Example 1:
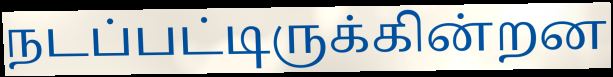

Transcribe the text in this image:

நடப்பட்டிருக்கின்றன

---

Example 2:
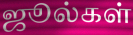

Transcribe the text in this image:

ஜூல்கள்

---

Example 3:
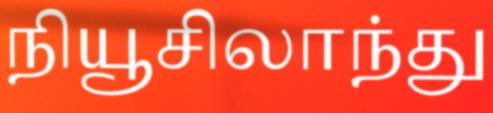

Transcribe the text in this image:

நியூசிலாந்து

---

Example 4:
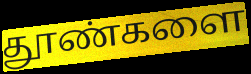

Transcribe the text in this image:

தூண்களை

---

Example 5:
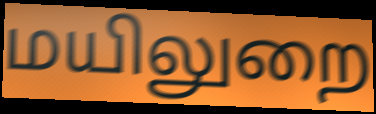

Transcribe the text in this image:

மயிலுறை